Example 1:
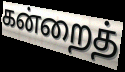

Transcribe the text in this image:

கன்றைத்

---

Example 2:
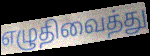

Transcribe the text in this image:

எழுதிவைத்து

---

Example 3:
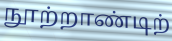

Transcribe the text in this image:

நூற்றாண்டிற்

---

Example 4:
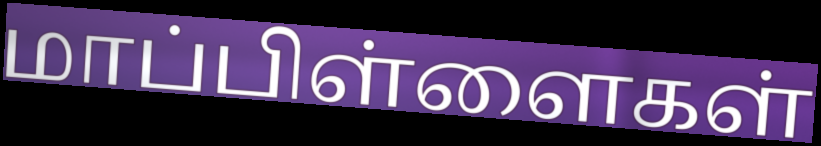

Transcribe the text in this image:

மாப்பிள்ளைகள்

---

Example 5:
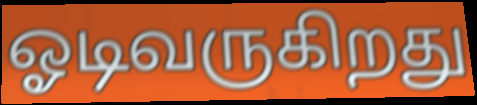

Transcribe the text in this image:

ஓடிவருகிறது